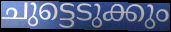
ചുട്ടെടുക്കും